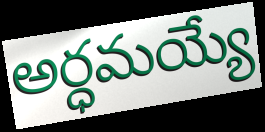
అర్ధమయ్యే